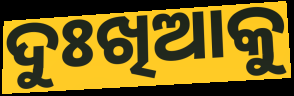
ଦୁଃଖିଆକୁ